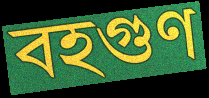
বহগুণ